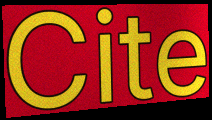
Cite